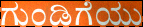
ಗುಂಡಿಗೆಯು